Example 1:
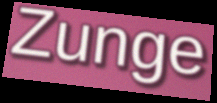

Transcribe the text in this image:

Zunge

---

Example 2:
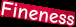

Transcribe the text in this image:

Fineness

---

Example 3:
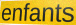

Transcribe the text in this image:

enfants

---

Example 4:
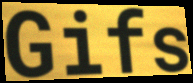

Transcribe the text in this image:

Gifs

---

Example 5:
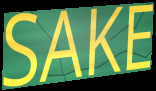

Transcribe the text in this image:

SAKE